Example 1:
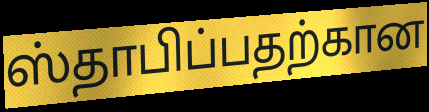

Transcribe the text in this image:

ஸ்தாபிப்பதற்கான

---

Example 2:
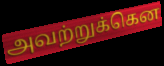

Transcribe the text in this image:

அவற்றுக்கென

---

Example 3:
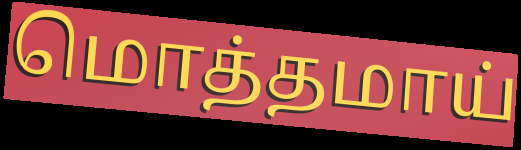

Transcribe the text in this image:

மொத்தமாய்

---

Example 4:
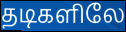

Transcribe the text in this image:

தடிகளிலே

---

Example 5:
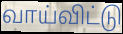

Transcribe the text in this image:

வாய்விட்டு